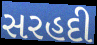
સરહદી